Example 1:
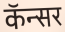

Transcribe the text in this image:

कॅन्सर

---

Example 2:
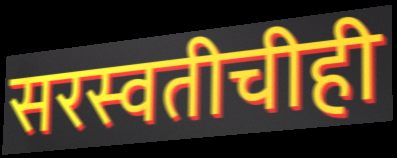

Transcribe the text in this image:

सरस्वतीचीही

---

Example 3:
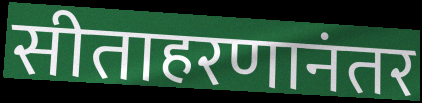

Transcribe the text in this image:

सीताहरणानंतर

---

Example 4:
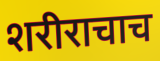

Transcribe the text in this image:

शरीराचाच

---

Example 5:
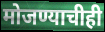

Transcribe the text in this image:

मोजण्याचीही